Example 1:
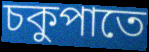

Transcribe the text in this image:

চকুপাতে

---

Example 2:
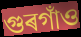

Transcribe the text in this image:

গুৰগাঁও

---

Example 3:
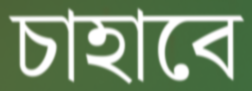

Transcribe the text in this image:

চাহাবে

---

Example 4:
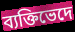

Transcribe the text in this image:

ব্যক্তিভেদে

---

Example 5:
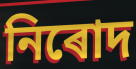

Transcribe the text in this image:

নিৰোদ